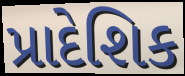
પ્રાદેશિક